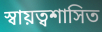
স্বায়ত্বশাসিত